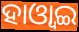
ହାଓ୍ୱାଇ